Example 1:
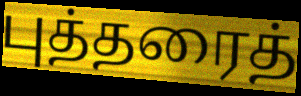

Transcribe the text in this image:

புத்தரைத்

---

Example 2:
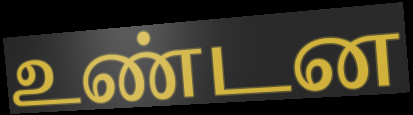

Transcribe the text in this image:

உண்டன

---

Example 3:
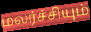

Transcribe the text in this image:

மலர்ச்சியும்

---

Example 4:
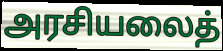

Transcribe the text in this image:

அரசியலைத்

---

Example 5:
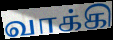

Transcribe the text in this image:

வாக்கி